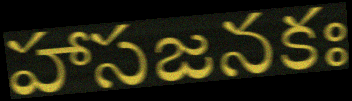
హాసజనకః